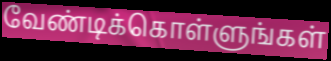
வேண்டிக்கொள்ளுங்கள்